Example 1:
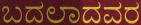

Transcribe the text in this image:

ಬದಲಾದವರ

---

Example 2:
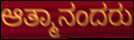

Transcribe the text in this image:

ಆತ್ಮಾನಂದರು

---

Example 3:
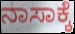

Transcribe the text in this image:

ನಾಸಾಕ್ಕೆ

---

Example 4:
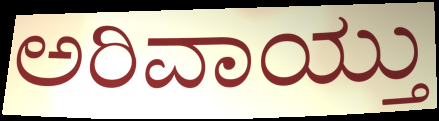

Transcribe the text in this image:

ಅರಿವಾಯ್ತು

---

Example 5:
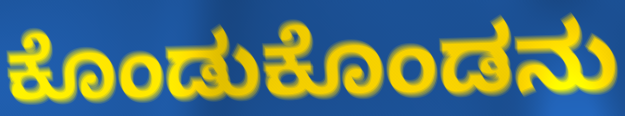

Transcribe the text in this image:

ಕೊಂಡುಕೊಂಡನು